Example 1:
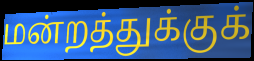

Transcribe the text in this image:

மன்றத்துக்குக்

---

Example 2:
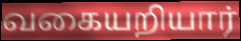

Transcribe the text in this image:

வகையறியார்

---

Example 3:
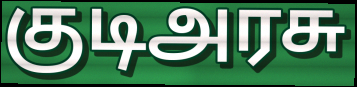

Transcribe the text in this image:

குடிஅரசு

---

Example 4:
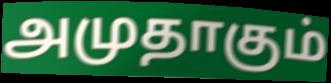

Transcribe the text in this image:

அமுதாகும்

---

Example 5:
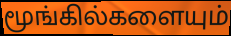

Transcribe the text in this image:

மூங்கில்களையும்